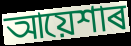
আয়েশাৰ